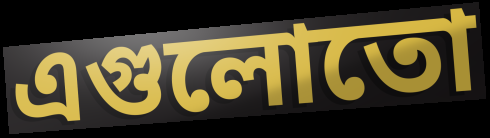
এগুলোতো